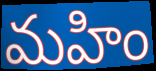
మహిం